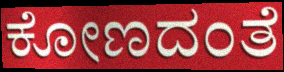
ಕೋಣದಂತೆ